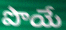
పొయే